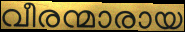
വീരന്മാരായ